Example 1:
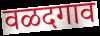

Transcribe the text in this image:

वळदगाव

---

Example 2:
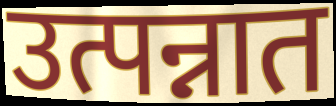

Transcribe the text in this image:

उत्पन्नात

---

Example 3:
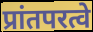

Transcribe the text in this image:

प्रांतपरत्वे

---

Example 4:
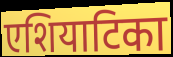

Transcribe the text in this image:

एशियाटिका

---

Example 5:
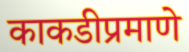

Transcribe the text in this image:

काकडीप्रमाणे